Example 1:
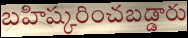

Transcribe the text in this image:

బహిష్కరించబడ్డారు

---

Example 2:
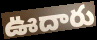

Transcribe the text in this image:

ఊదారు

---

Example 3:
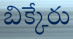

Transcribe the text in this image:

బిక్కేరు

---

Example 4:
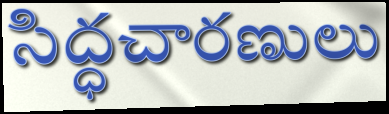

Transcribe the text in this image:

సిద్ధచారణులు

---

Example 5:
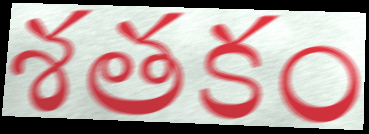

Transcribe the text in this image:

శతకం